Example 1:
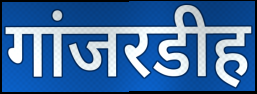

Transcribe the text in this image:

गांजरडीह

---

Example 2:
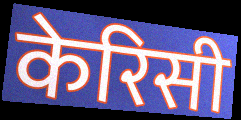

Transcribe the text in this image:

केरिसी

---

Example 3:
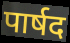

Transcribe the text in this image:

पार्षद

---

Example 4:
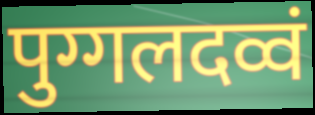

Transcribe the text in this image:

पुग्गलदव्वं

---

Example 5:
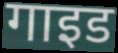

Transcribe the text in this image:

गाइड